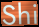
Shi